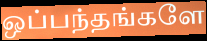
ஒப்பந்தங்களே